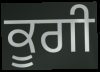
ਕੂਗੀ